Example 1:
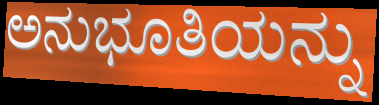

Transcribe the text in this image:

ಅನುಭೂತಿಯನ್ನು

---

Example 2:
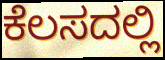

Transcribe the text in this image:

ಕೆಲಸದಲ್ಲಿ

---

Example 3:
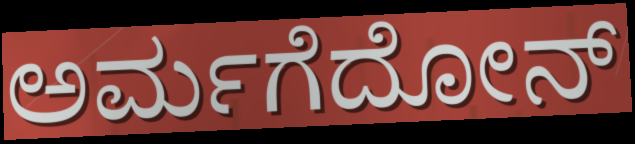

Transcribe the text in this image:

ಅರ್ಮಗೆದೋನ್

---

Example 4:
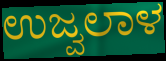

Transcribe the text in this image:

ಉಜ್ವಲಾಳ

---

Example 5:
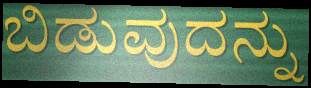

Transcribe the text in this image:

ಬಿಡುವುದನ್ನು